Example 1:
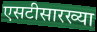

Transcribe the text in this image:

एसटीसारख्या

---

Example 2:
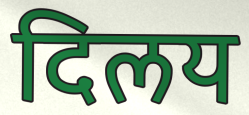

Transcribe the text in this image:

दिलय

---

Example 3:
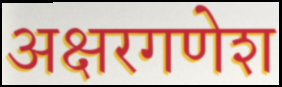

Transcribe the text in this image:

अक्षरगणेश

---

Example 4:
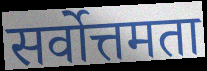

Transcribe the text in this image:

सर्वोत्तमता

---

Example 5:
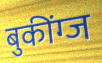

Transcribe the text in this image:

बुकींग्ज